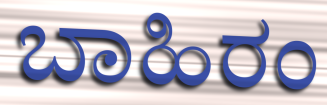
ಬಾಹಿರಂ